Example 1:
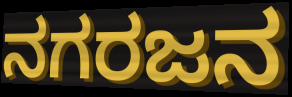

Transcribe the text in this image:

ನಗರಜನ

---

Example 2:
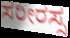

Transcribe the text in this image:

ಸರೀರಸ್ಸ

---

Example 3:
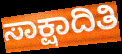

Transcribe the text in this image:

ಸಾಕ್ಷಾದಿತಿ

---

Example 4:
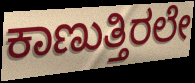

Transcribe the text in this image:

ಕಾಣುತ್ತಿರಲೇ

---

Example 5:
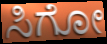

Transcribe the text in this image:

ಸಿಗೋ